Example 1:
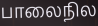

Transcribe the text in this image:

பாலைநில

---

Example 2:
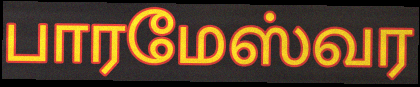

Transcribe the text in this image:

பாரமேஸ்வர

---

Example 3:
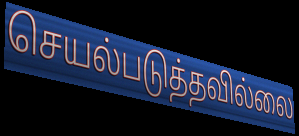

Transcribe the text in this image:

செயல்படுத்தவில்லை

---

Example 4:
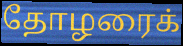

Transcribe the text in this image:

தோழரைக்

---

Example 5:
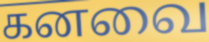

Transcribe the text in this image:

கனவை